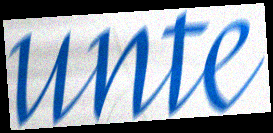
unte